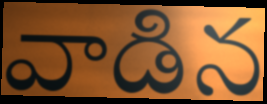
వాడిన